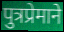
पुत्रप्रेमाने